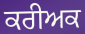
ਕਰੀਅਕ